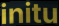
initu